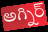
అగ్నిర్